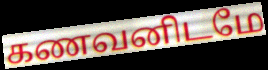
கணவனிடமே